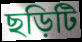
ছড়িটি